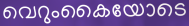
വെറുംകൈയോടെ